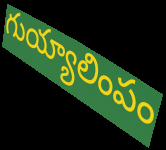
గుయ్యాలింపం